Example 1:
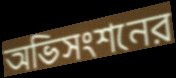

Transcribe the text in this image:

অভিসংশনের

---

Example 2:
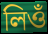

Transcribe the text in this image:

লিওঁ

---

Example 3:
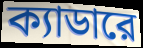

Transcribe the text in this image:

ক্যাডারে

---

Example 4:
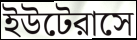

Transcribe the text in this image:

ইউটেরাসে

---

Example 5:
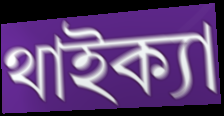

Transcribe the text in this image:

থাইক্যা